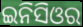
ଇନିସିଓର